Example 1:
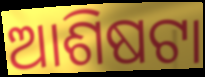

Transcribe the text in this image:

ଆଶିଷଟା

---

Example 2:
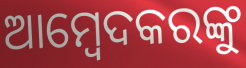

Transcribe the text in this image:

ଆମ୍ବେଦକରଙ୍କୁ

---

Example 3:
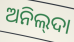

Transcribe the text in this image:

ଅନିଲ୍‌ଦା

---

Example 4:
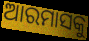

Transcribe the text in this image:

ଆରମାସକୁ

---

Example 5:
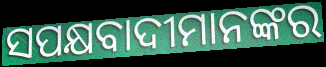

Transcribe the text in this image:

ସପକ୍ଷବାଦୀମାନଙ୍କର